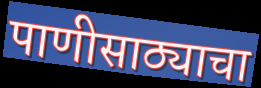
पाणीसाठ्याचा